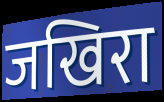
जखिरा